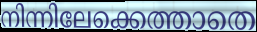
നിന്നിലേക്കെത്താതെ